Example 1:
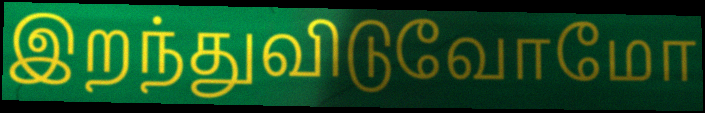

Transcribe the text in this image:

இறந்துவிடுவோமோ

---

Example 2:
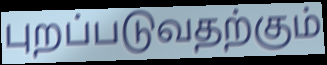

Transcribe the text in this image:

புறப்படுவதற்கும்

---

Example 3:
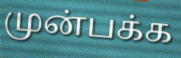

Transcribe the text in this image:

முன்பக்க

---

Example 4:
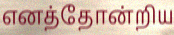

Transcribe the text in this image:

எனத்தோன்றிய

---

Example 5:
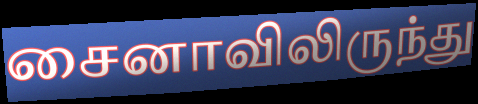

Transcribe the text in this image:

சைனாவிலிருந்து